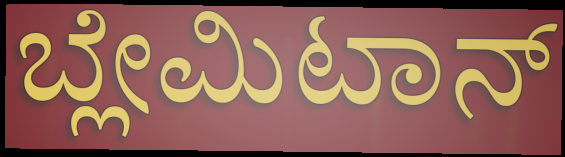
ಬ್ಲೇಮಿಟಾನ್